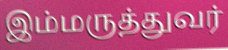
இம்மருத்துவர்